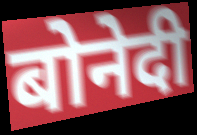
बोनेदी